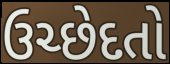
ઉચ્છેદતો